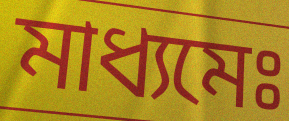
মাধ্যমেঃ